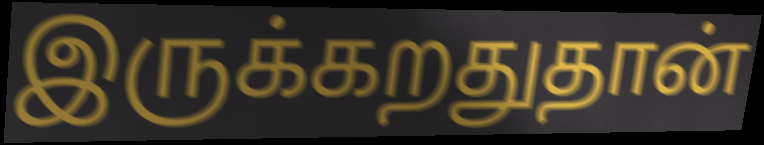
இருக்கறதுதான்